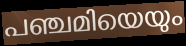
പഞ്ചമിയെയും